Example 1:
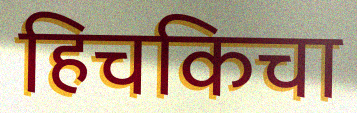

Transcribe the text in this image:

हिचकिचा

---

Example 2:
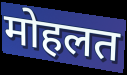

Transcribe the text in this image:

मोहलत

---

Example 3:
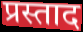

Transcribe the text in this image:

प्रस्ताद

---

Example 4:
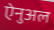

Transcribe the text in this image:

ऐनुअल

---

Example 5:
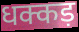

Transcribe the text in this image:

धक्कड़